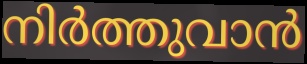
നിർത്തുവാൻ